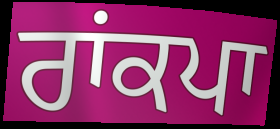
ਰਾਂਕਪਾ